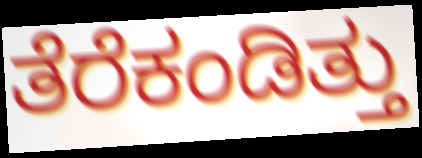
ತೆರೆಕಂಡಿತ್ತು